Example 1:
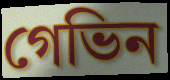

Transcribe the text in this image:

গেভিন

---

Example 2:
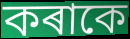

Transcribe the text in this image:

কৰাকে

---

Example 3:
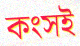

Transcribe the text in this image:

কংসই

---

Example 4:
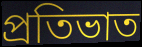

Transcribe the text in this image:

প্ৰতিভাত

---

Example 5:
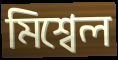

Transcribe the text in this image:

মিশ্বেল